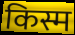
किस्‍म